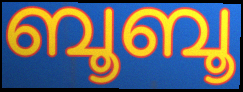
ബൂബൂ